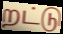
றட்டு